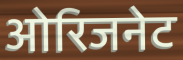
ओरिजनेट